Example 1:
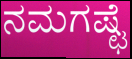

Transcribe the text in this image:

ನಮಗಷ್ಟೆ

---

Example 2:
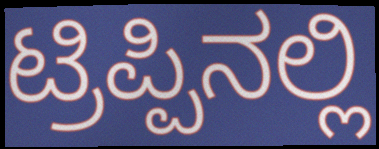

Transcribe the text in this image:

ಟ್ರಿಪ್ಪಿನಲ್ಲಿ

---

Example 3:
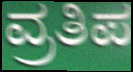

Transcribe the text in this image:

ವ್ರತಿಪ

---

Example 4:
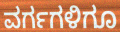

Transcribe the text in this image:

ವರ್ಗಗಳಿಗೂ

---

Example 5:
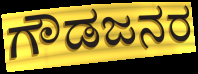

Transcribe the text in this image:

ಗೌಡಜನರ